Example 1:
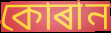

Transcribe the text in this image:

কোৰান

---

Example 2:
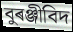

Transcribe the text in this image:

বুৰঞ্জীবিদ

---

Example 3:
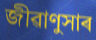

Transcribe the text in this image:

জীৱাণুসাৰ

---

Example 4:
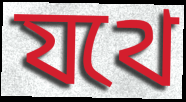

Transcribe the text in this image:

যথে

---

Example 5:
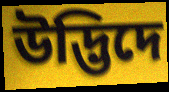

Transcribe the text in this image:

উদ্ভিদে